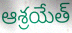
ఆశ్రయేత్